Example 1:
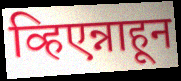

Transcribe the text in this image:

व्हिएन्नाहून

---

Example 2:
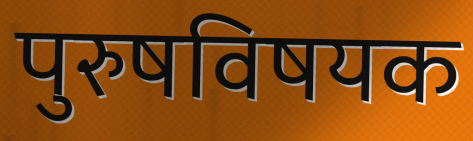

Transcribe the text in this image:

पुरुषविषयक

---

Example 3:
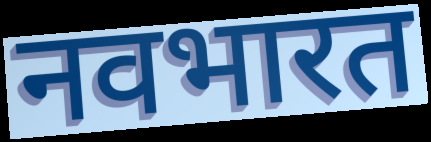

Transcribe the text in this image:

नवभारत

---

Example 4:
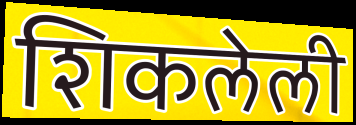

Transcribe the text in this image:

शिकलेली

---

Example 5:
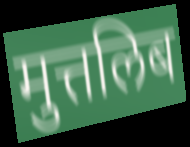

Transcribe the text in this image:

मुत्तलिब